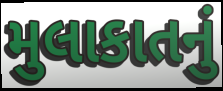
મુલાકાતનું